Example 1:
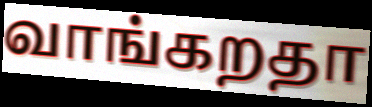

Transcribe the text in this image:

வாங்கறதா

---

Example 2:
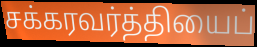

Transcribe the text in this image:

சக்கரவர்த்தியைப்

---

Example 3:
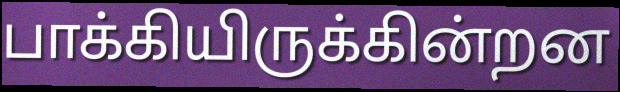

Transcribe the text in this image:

பாக்கியிருக்கின்றன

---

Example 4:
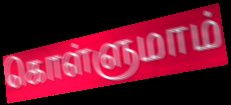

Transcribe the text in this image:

கொள்ளுமாம்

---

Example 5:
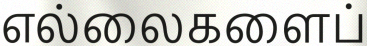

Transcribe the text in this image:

எல்லைகளைப்